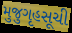
મુજુગૃહસૂચી